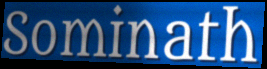
Sominath